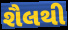
શૈલથી